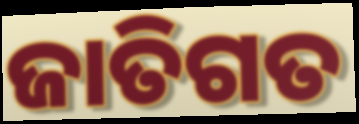
ଜାତିଗତ